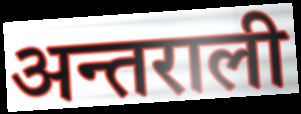
अन्तराली